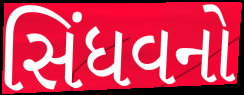
સિંધવનો